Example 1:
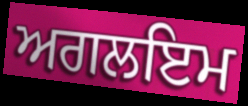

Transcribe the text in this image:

ਅਗਲਇਮ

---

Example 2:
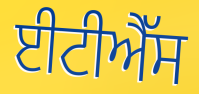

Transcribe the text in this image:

ਈਟੀਐੱਸ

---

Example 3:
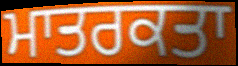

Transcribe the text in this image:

ਮਾਤਰਕਤਾ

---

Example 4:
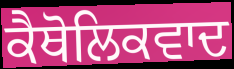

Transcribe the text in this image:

ਕੈਥੋਲਿਕਵਾਦ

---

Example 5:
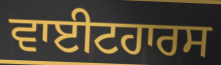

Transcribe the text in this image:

ਵਾਈਟਹਾਰਸ